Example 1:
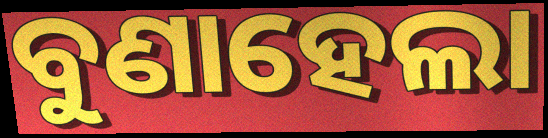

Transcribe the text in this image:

ବୁଣାହେଲା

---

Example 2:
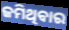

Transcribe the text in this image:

ଜମିଥିବାର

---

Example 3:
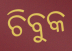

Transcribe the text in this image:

ଚିବୁକ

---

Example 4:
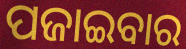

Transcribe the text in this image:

ପଜାଇବାର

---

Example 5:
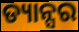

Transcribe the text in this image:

ଡ୍ୟାନ୍ସର